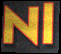
Nl